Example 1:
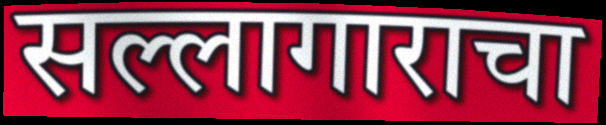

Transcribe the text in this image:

सल्लागाराचा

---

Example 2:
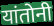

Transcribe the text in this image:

यांतोनी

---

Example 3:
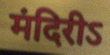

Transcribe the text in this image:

मंदिरीऽ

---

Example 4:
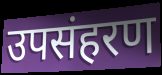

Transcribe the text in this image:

उपसंहरण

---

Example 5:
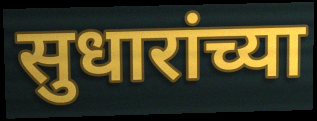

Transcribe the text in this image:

सुधारांच्या